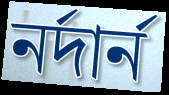
নর্দার্ন